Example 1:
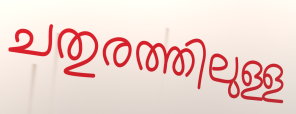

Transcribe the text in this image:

ചതുരത്തിലുള്ള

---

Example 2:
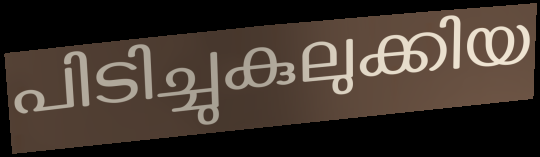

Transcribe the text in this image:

പിടിച്ചുകുലുക്കിയ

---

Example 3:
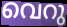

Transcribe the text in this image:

വെറു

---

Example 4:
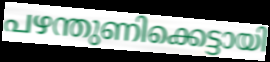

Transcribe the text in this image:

പഴന്തുണിക്കെട്ടായി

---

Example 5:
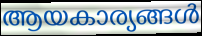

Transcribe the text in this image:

ആയകാര്യങ്ങൾ